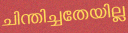
ചിന്തിച്ചതേയില്ല